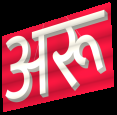
अरू